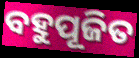
ବହୁପୂଜିତ